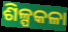
ଶିଳ୍ପକଳା